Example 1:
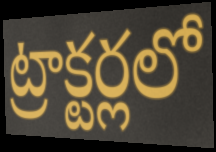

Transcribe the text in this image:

ట్రాక్టర్లలో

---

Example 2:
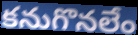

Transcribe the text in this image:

కనుగొనలేం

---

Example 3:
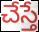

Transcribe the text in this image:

చేస్తే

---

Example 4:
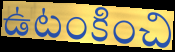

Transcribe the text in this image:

ఉటంకించి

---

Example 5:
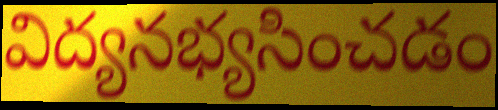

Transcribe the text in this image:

విద్యనభ్యసించడం